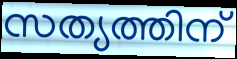
സത്യത്തിന്